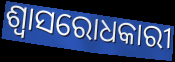
ଶ୍ୱାସରୋଧକାରୀ